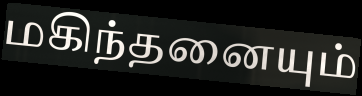
மகிந்தனையும்